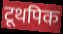
टूथपिक